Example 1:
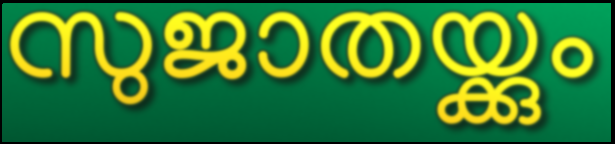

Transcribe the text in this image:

സുജാതയ്ക്കും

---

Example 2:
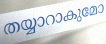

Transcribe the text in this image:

തയ്യാറാകുമോ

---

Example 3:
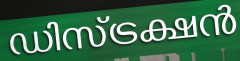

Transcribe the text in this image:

ഡിസ്ട്രക്ഷൻ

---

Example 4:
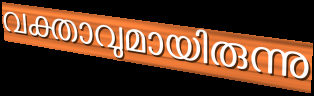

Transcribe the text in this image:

വക്താവുമായിരുന്നു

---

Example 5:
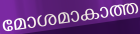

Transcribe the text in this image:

മോശമാകാത്ത